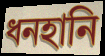
ধনহানি